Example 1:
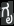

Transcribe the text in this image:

ಗೃ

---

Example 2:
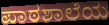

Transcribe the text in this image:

ಪಾಠಶಾಲೆಯ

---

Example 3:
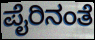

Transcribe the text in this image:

ಪೈರಿನಂತೆ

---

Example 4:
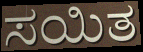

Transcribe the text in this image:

ಸಯಿತ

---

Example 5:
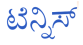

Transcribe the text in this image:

ಟೆನ್ನಿಸ್